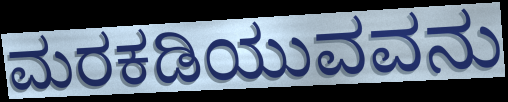
ಮರಕಡಿಯುವವನು